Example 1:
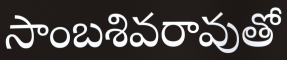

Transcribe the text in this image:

సాంబశివరావుతో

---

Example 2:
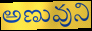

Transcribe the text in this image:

అణువుని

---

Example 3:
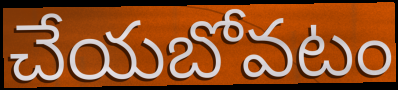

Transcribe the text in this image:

చేయబోవటం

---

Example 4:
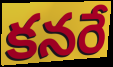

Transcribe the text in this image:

కనరే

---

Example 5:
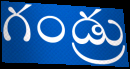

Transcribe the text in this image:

గండ్రు